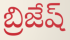
బ్రిజేష్